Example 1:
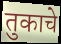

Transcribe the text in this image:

तुकाचे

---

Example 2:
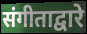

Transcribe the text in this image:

संगीताद्वारे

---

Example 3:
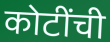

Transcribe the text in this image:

कोटींची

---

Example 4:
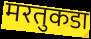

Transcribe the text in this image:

मरतुकडा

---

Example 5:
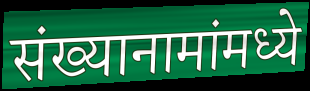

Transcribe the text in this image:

संख्यानामांमध्ये